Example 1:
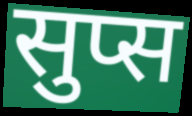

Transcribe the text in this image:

सुप्स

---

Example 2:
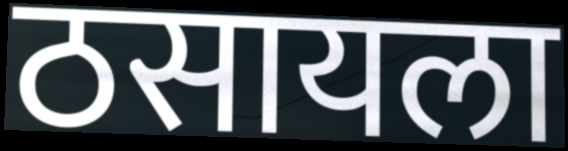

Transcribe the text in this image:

ठसायला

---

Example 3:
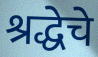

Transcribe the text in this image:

श्रद्धेचे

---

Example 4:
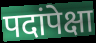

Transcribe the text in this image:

पदांपेक्षा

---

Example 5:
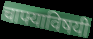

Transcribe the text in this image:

चाफ्याविषयी